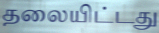
தலையிட்டது